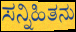
ಸನ್ನಿಹಿತನು